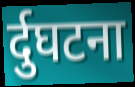
र्दुघटना